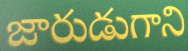
జారుడుగాని